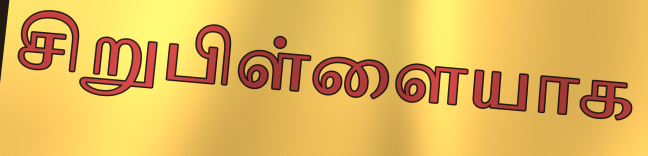
சிறுபிள்ளையாக